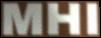
MHI